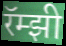
रॅम्झी